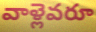
వాళ్లెవరూ